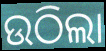
ଉଠିଲା